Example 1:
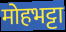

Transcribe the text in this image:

मोहभट्टा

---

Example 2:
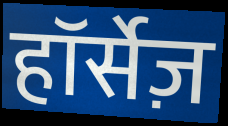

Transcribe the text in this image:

हॉर्सेज़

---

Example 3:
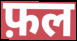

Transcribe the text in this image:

फ़ल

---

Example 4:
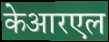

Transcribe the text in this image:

केआरएल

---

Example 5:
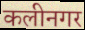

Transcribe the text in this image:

कलीनगर